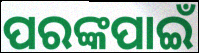
ପରଙ୍କପାଇଁ